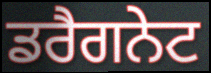
ਡਰੈਗਨੇਟ